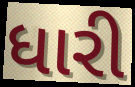
ધારી